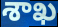
శాఖ